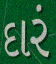
દારં